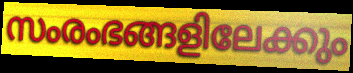
സംരംഭങ്ങളിലേക്കും